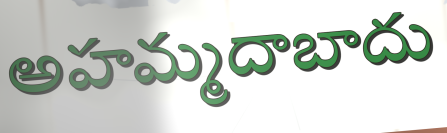
అహమ్మదాబాదు